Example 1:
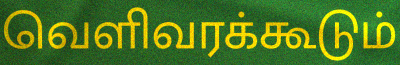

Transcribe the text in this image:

வெளிவரக்கூடும்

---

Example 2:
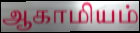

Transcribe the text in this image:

ஆகாமியம்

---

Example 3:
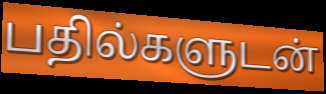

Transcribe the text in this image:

பதில்களுடன்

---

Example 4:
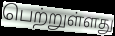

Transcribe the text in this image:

பெற்றுள்ளது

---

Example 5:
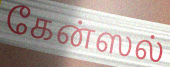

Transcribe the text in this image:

கேன்ஸல்